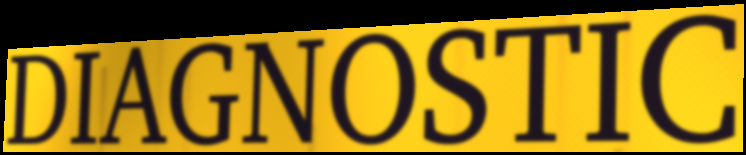
DIAGNOSTIC